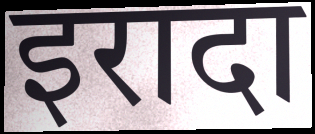
इरादा